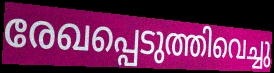
രേഖപ്പെടുത്തിവെച്ചു